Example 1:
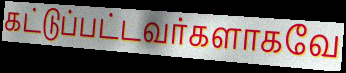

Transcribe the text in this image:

கட்டுப்பட்டவர்களாகவே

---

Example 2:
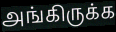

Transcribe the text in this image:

அங்கிருக்க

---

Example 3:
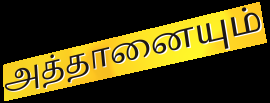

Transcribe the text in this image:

அத்தானையும்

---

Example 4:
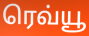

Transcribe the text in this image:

ரெவ்யூ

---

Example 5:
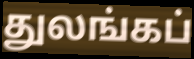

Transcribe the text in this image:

துலங்கப்